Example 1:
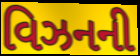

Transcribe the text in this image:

વિઝનની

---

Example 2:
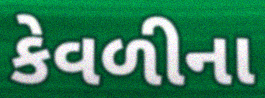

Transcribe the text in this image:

કેવળીના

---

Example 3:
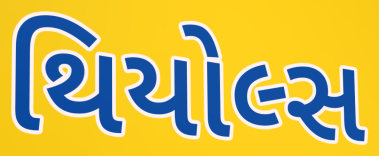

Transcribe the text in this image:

થિયોલ્સ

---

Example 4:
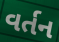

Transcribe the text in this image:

વર્તન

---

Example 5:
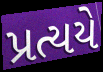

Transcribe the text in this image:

પ્રત્યયે